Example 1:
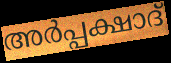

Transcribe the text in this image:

അർപ്പക്ഷാദ്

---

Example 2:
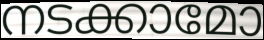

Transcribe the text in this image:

നടക്കാമോ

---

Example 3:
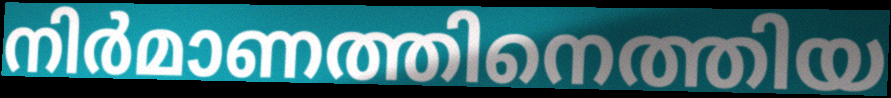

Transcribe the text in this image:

നിർമാണത്തിനെത്തിയ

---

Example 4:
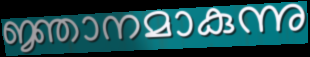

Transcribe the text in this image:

ജ്ഞാനമാകുന്നു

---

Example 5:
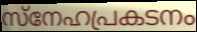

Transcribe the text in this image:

സ്നേഹപ്രകടനം